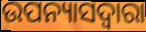
ଉପନ୍ୟାସଦ୍ୱାରା